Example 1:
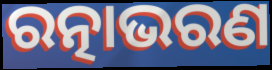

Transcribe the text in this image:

ରତ୍ନାଭରଣ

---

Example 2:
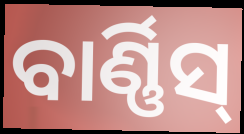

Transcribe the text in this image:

ବାର୍ଣ୍ଣିସ୍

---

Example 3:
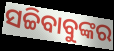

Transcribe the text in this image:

ସଚ୍ଚିବାବୁଙ୍କର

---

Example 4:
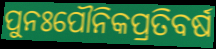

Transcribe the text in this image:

ପୁନଃପୌନିକପ୍ରତିବର୍ଷ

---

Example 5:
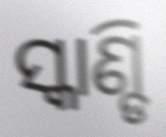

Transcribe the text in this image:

ସ୍କାଣ୍ଡି